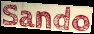
Sando